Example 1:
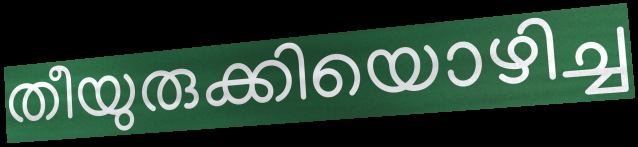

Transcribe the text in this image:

തീയുരുക്കിയൊഴിച്ച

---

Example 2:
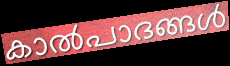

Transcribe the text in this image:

കാൽപാദങ്ങൾ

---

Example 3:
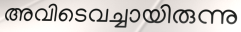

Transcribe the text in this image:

അവിടെവച്ചായിരുന്നു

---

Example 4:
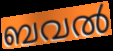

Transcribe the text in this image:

ബവൽ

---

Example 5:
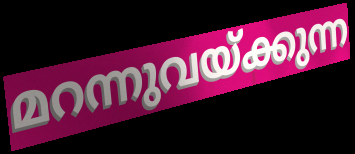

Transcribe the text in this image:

മറന്നുവയ്ക്കുന്ന